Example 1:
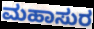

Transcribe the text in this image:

ಮಹಾಸುರ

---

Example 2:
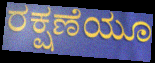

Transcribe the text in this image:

ರಕ್ಷಣೆಯೂ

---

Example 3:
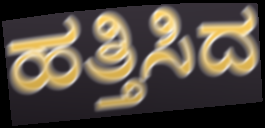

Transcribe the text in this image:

ಹತ್ತಿಸಿದ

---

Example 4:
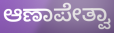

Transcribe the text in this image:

ಆಣಾಪೇತ್ವಾ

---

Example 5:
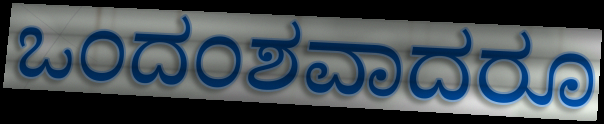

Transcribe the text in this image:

ಒಂದಂಶವಾದರೂ